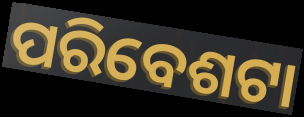
ପରିବେଶଟା